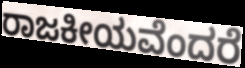
ರಾಜಕೀಯವೆಂದರೆ